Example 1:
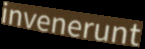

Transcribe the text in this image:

invenerunt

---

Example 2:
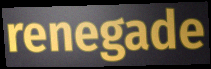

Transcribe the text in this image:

renegade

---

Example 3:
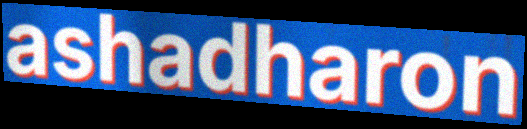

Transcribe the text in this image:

ashadharon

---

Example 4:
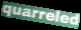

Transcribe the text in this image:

quarreled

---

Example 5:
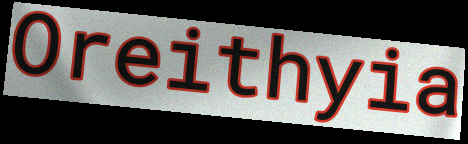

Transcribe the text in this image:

Oreithyia